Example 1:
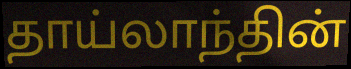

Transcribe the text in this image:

தாய்லாந்தின்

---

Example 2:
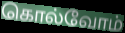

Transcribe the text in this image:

கொல்வோம்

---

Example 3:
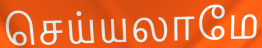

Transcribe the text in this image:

செய்யலாமே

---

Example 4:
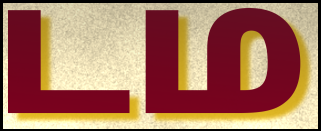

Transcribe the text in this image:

டம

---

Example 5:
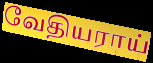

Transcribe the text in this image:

வேதியராய்